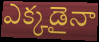
ఎక్కడైనా